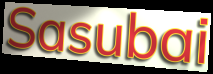
Sasubai